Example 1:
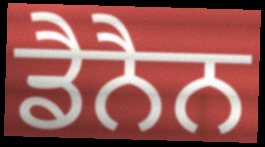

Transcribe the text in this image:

ਡੈਨੈਨ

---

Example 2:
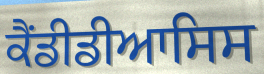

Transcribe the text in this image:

ਕੈਂਡੀਡੀਆਸਿਸ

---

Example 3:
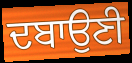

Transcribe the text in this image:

ਦਬਾਉਣੀ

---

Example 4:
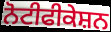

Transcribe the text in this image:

ਨੋਟੀਫੀਕੇਸ਼ਨ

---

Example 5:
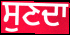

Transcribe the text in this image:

ਸੁਣਦਾ